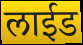
लाईड